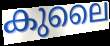
കുലൈ